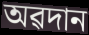
অৱদান